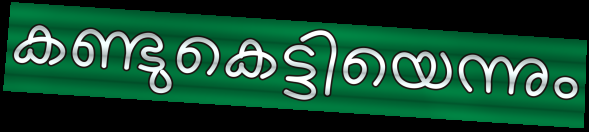
കണ്ടുകെട്ടിയെന്നും